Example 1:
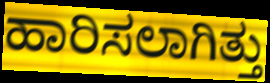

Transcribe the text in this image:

ಹಾರಿಸಲಾಗಿತ್ತು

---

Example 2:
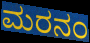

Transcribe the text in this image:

ಮರನಂ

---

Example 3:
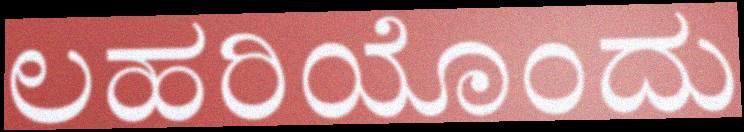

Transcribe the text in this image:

ಲಹರಿಯೊಂದು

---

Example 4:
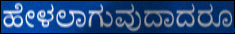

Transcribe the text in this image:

ಹೇಳಲಾಗುವುದಾದರೂ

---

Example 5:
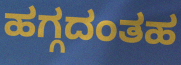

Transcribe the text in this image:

ಹಗ್ಗದಂತಹ